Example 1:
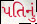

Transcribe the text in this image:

પતિનું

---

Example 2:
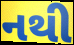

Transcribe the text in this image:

નથી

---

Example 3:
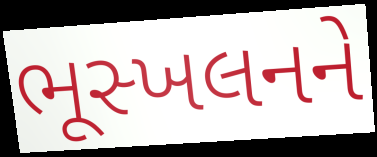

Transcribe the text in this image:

ભૂસ્ખલનને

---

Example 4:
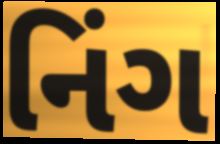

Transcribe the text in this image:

નિંગ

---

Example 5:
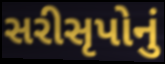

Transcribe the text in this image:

સરીસૃપોનું